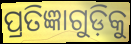
ପ୍ରତିଜ୍ଞାଗୁଡ଼ିକୁ